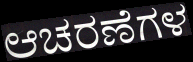
ಆಚರಣೆಗಳ